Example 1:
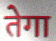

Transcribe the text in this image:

तेगा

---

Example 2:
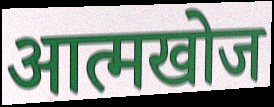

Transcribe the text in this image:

आत्मखोज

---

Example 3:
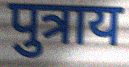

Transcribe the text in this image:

पुत्राय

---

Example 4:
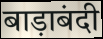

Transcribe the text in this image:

बाड़ाबंदी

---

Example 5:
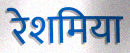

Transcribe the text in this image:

रेशमिया